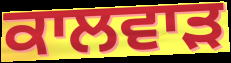
ਕਾਲਵਾੜ